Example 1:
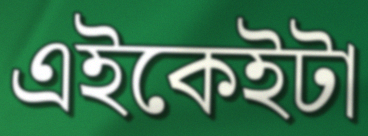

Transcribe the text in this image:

এইকেইটা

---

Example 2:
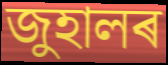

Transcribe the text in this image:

জুহালৰ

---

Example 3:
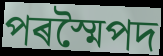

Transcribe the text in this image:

পৰস্মৈপদ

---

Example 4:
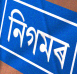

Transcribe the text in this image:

নিগমৰ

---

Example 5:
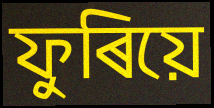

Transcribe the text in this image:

ফুৰিয়ে